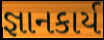
જ્ઞાનકાર્ય